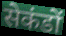
सेकंडों